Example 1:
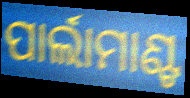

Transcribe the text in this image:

ପାର୍ଲାମାଣ୍ଟ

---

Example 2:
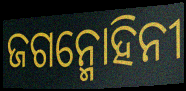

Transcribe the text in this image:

ଜଗନ୍ମୋହିନୀ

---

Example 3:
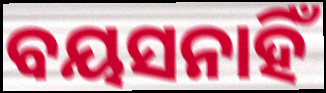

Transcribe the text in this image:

ବୟସନାହିଁ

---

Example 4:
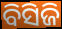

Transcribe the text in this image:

ବିସିଜି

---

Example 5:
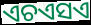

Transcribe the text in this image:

ଏଚଏସଏ